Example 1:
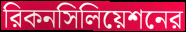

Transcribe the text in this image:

রিকনসিলিয়েশনের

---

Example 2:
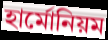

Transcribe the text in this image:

হার্মোনিয়ম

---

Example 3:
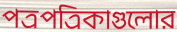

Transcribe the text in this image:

পত্রপত্রিকাগুলোর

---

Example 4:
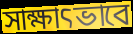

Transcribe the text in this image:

সাক্ষাৎভাবে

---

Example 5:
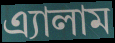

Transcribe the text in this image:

এ্যালাম